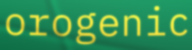
orogenic